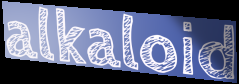
alkaloid